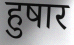
हुषार